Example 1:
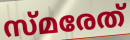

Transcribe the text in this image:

സ്മരേത്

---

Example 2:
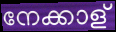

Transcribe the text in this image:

നേക്കാള്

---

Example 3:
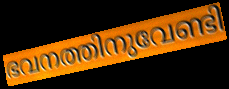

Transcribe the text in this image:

ഭവനത്തിനുവേണ്ടി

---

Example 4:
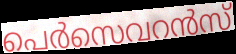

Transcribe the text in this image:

പെർസെവറൻസ്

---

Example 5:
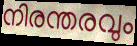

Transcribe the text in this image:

നിരന്തരവും